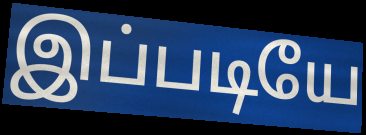
இப்படியே